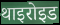
थाइरोइड